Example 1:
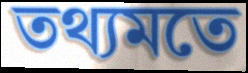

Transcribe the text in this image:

তথ্যমতে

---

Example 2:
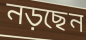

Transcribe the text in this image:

নড়ছেন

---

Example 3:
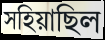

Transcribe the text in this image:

সহিয়াছিল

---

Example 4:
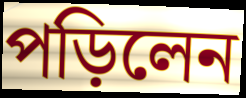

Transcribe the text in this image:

পড়িলেন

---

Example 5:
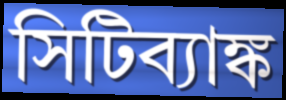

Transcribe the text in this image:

সিটিব্যাঙ্ক